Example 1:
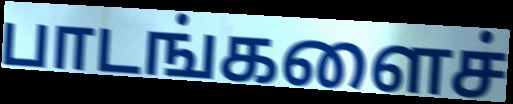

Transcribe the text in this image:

பாடங்களைச்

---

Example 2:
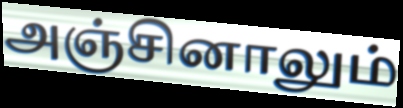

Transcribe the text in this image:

அஞ்சினாலும்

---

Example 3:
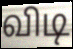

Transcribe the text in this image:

விடி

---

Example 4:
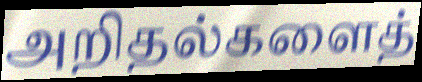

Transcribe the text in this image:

அறிதல்களைத்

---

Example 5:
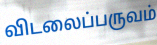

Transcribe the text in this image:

விடலைப்பருவம்